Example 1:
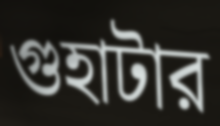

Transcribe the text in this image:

গুহাটার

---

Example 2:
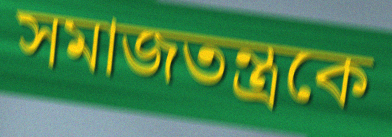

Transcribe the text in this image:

সমাজতন্ত্রকে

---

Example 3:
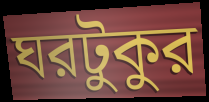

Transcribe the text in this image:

ঘরটুকুর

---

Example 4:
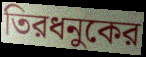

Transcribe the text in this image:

তিরধনুকের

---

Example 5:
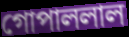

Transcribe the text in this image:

গোপাললাল